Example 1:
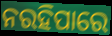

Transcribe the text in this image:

ନରହିପାରେ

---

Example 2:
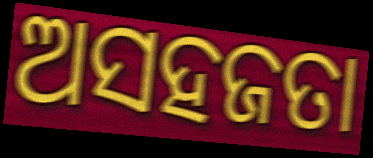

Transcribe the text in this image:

ଅସହଜତା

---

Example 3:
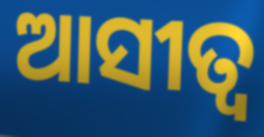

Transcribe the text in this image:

ଆସୀତ୍ବ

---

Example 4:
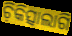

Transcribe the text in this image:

ଚ଼ିକିତ୍ସାଲାଗି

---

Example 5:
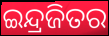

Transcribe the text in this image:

ଇନ୍ଦ୍ରଜିତର